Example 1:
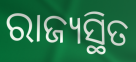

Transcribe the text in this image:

ରାଜ୍ୟସ୍ଥିତ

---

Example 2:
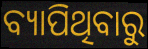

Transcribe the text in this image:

ବ୍ୟାପିଥିବାରୁ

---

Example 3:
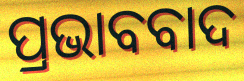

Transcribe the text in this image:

ପ୍ରଭାବବାଦ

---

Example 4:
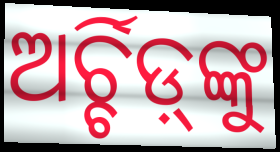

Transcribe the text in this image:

ଅର୍ଚ୍ଚିଡ଼୍‌ଙ୍କୁ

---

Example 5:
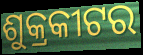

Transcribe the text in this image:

ଶୁକ୍ରକୀଟର